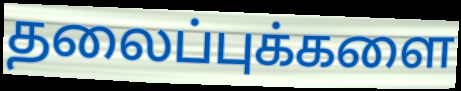
தலைப்புக்களை